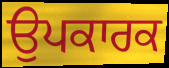
ਉਪਕਾਰਕ